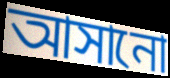
আসানো